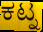
ಕಟ್ನ